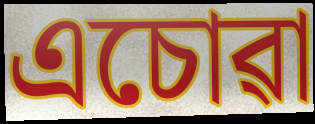
এচোৱা